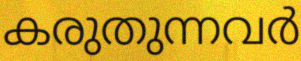
കരുതുന്നവർ